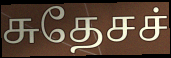
சுதேசச்